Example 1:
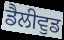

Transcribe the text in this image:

ਡੈਲੀਵੁਡ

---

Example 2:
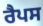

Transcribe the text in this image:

ਰੈਪਸ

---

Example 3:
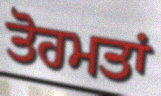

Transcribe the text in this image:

ਤੋਹਮਤਾਂ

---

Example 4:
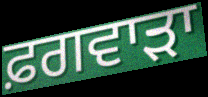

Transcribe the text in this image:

ਫ਼ਗਵਾੜਾ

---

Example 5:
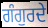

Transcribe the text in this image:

ਗੰਗੁਰਦੇ